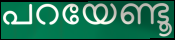
പറയേണ്ടൂ